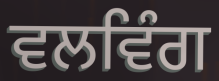
ਵਲਵਿੰਗ